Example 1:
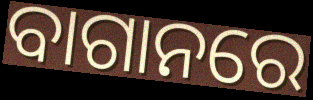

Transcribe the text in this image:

ବାଗାନରେ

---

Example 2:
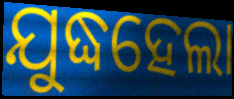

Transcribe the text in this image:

ଯୁଦ୍ଧହେଲା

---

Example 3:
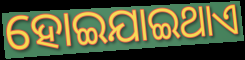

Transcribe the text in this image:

ହୋଇଯାଇଥାଏ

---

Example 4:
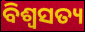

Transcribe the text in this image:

ବିଶ୍ୱସତ୍ୟ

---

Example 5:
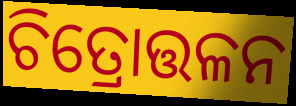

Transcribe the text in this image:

ଚିତ୍ରୋତ୍ତଳନ